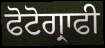
ਫੋਟੋਗ੍ਰਾਫੀ